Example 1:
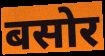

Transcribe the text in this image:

बसोर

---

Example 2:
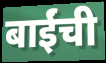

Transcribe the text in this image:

बाईंची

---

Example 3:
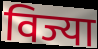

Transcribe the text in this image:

विज्या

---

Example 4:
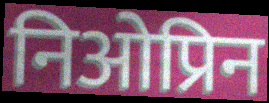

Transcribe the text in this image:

निओप्रिन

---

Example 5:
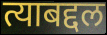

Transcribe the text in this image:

त्याबद्दल